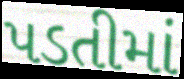
પડતીમાં